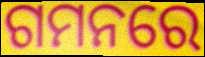
ଗମନରେ